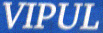
VIPUL